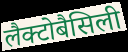
लैक्टोबैसिली